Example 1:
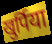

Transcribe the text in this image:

खुर्पिया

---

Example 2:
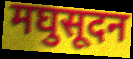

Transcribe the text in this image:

मघुसूदन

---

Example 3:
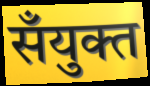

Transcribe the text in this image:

सँयुक्त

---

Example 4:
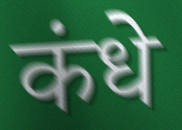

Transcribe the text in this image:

कंधे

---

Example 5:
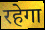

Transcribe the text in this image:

रहेगा